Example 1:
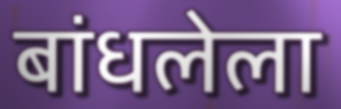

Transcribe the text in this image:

बांधलेला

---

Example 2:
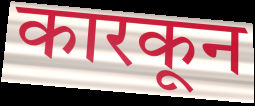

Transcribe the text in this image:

कारकून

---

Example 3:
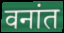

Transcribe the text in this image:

वनांत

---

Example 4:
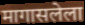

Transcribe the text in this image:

मागासलेला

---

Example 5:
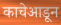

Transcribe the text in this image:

काचेआडून